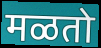
मळतो